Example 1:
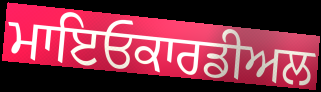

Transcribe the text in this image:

ਮਾਇਓਕਾਰਡੀਅਲ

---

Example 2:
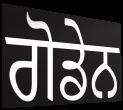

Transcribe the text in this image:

ਗੋਡੇਨ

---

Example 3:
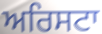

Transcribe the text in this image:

ਅਰਿਸਟਾ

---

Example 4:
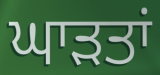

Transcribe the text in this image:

ਘਾਡ਼ਤਾਂ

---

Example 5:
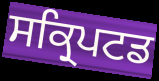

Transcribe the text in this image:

ਸਕ੍ਰਿਪਟਡ